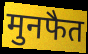
मुनफैत